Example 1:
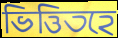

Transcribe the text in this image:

ভিত্তিতহে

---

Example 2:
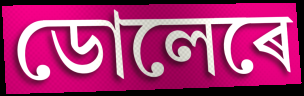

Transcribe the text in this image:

ডোলেৰে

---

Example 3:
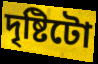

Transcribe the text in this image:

দৃষ্টিটো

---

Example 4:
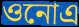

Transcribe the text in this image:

ওনোএ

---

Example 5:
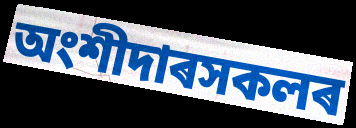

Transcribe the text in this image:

অংশীদাৰসকলৰ